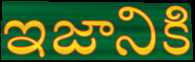
ఇజానికి